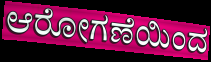
ಆರೋಗಣೆಯಿಂದ